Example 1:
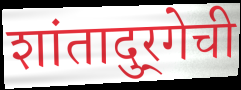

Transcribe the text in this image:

शांतादुर्गेची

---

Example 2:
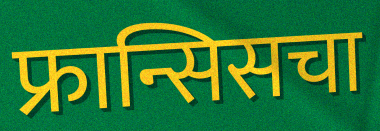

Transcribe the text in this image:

फ्रान्सिसचा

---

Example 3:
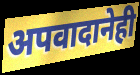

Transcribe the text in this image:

अपवादानेही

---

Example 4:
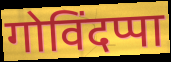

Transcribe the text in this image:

गोविंदप्पा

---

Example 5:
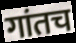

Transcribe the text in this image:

गांतच